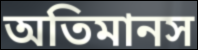
অতিমানস